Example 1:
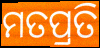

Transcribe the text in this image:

ମତପ୍ରତି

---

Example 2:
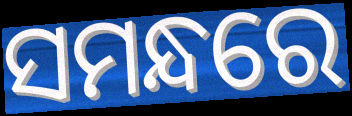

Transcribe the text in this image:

ସମନ୍ଧରେ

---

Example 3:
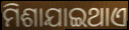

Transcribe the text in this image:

ମିଶାଯାଇଥାଏ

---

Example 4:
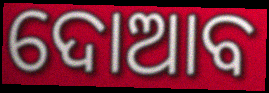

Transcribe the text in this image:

ଦୋଆବ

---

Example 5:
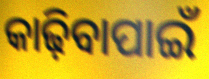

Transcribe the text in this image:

କାଢ଼ିବାପାଇଁ